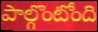
పాల్గొంటోంది